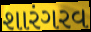
શારંગરવ